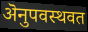
ऄनुपवस्थवत